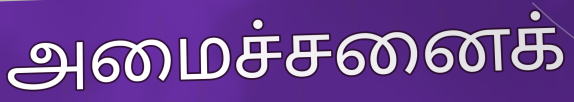
அமைச்சனைக்